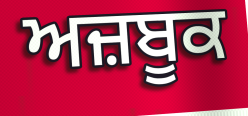
ਅਜ਼ਬੂਕ